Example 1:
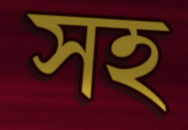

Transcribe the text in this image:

সহ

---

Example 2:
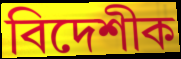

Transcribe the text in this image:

বিদেশীক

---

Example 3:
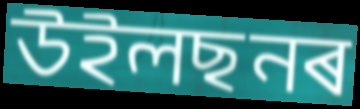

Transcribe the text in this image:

উইলছনৰ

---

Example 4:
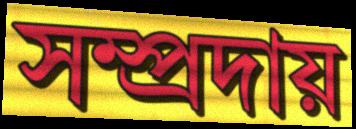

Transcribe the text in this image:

সম্প্ৰদায়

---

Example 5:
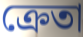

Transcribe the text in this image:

ক্ৰেতা